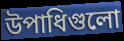
উপাধিগুলো